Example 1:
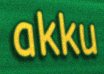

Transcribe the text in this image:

akku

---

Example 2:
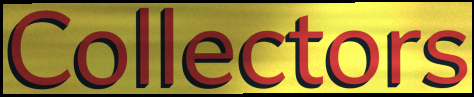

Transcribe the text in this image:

Collectors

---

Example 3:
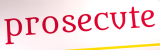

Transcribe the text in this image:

prosecute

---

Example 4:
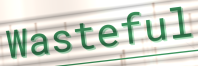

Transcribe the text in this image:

Wasteful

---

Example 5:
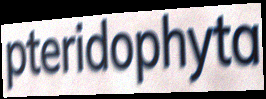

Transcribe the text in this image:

pteridophyta